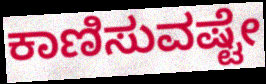
ಕಾಣಿಸುವಷ್ಟೇ